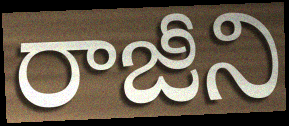
రాజీని